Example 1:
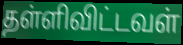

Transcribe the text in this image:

தள்ளிவிட்டவள்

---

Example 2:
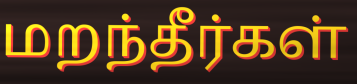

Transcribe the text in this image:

மறந்தீர்கள்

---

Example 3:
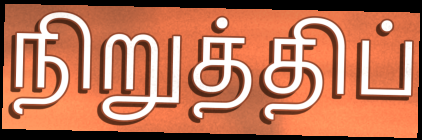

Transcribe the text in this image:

நிறுத்திப்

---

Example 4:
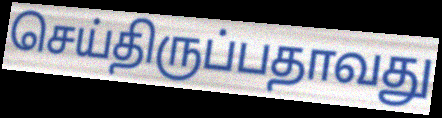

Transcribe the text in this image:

செய்திருப்பதாவது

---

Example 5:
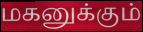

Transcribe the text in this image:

மகனுக்கும்